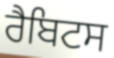
ਰੈਬਿਟਸ